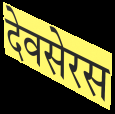
देवसेरस